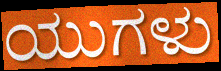
ಯುಗಳು